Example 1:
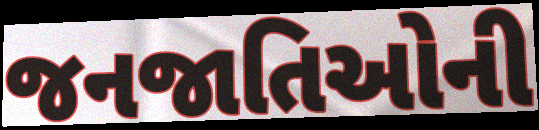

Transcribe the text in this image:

જનજાતિઓની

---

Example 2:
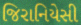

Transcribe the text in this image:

જિરાનિયેસી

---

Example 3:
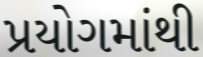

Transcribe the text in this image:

પ્રયોગમાંથી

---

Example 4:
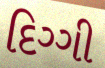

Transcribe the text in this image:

દિગ્ગી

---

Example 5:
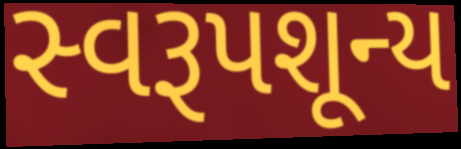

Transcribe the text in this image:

સ્વરૂપશૂન્ય